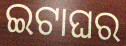
ଇଟାଘର